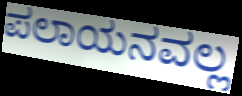
ಪಲಾಯನವಲ್ಲ